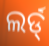
ଲର୍ଡ୍